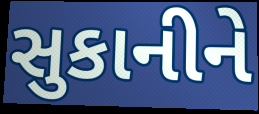
સુકાનીને